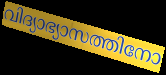
വിദ്യാഭ്യാസത്തിനോ